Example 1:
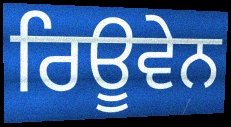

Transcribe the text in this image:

ਰਿਊਵੇਨ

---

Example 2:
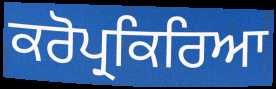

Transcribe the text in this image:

ਕਰੋਪ੍ਰਕਿਰਿਆ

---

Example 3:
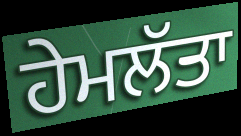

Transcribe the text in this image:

ਹੇਮਲੱਤਾ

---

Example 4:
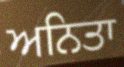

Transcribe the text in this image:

ਅਨਿਤਾ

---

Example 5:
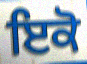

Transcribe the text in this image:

ਇਕੋ